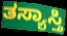
ತಸ್ಯಾಸ್ತಿ